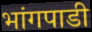
भांगपाडी